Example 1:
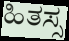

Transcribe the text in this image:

ಹಿತಸ್ಸ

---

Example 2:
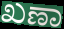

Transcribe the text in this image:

ಖಣಾ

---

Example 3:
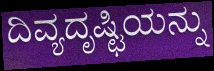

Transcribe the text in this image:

ದಿವ್ಯದೃಷ್ಟಿಯನ್ನು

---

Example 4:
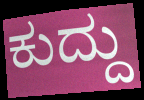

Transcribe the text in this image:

ಕುದ್ದು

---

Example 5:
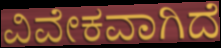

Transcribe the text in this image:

ವಿವೇಕವಾಗಿದೆ